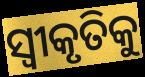
ସ୍ବୀକୃତିକୁ